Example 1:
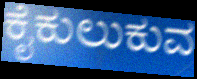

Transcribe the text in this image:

ಕೈಕುಲುಕುವ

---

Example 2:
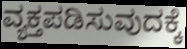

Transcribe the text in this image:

ವ್ಯಕ್ತಪಡಿಸುವುದಕ್ಕೆ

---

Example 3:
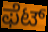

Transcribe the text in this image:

ಫೆಟ್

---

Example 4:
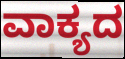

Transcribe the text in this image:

ವಾಕ್ಯದ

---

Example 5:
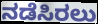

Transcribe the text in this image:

ನಡೆಸಿರಲು